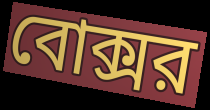
বোক্সর